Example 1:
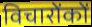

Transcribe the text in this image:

विचारोंकों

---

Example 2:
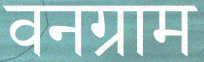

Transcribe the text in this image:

वनग्राम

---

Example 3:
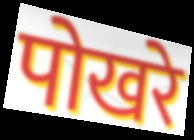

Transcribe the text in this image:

पोखरे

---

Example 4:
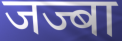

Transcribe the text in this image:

जज्बा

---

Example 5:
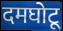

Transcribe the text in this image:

दमघोटू